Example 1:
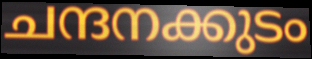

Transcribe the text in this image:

ചന്ദനക്കുടം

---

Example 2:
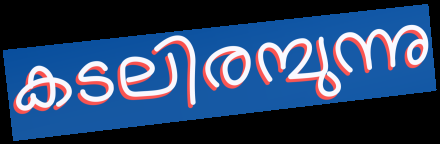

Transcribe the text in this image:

കടലിരമ്പുന്നു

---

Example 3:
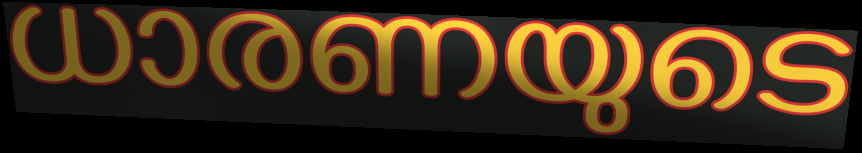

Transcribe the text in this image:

ധാരണയുടെ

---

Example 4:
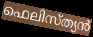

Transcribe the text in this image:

ഫെലിസ്ത്യൻ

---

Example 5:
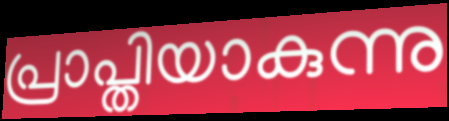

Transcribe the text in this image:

പ്രാപ്തിയാകുന്നു